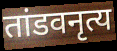
तांडवनृत्य